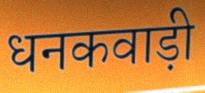
धनकवाड़ी